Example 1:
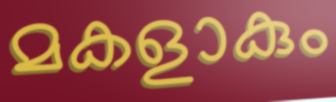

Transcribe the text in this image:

മകളാകും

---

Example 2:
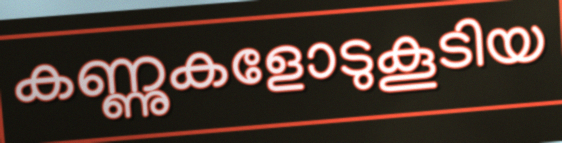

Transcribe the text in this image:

കണ്ണുകളോടുകൂടിയ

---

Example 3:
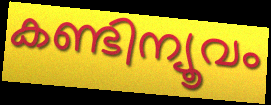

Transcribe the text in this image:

കണ്ടിന്യൂവം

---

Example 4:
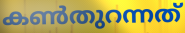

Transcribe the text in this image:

കൺതുറന്നത്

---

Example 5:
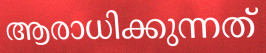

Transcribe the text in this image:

ആരാധിക്കുന്നത്